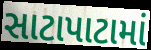
સાટાપાટામાં